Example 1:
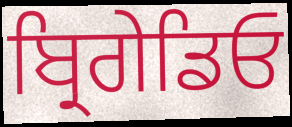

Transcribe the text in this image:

ਬ੍ਰਿਗੇਡਿਓ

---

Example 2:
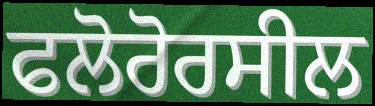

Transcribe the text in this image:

ਫਲੋਰੋਰਸੀਲ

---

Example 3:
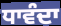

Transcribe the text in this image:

ਧਾਵੰਦਾ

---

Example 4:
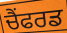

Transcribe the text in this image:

ਚੈਂਫਰਡ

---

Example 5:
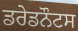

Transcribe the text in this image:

ਡਰੇਡਨੌਟਸ